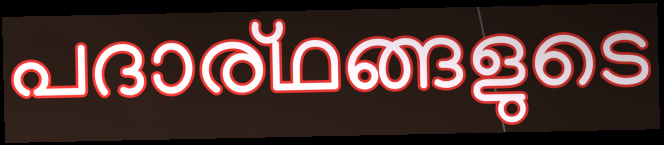
പദാര്ഥങ്ങളുടെ